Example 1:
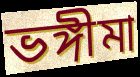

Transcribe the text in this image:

ভঙ্গীমা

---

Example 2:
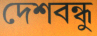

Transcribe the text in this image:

দেশবন্ধু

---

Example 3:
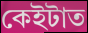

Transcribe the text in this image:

কেইটাত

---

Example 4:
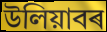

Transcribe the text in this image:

উলিয়াবৰ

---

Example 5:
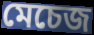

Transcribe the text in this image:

মেচেজ